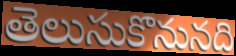
తెలుసుకొనునది